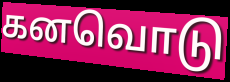
கனவொடு